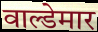
वाल्डेमार